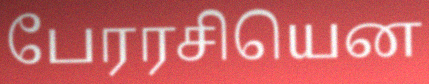
பேரரசியென